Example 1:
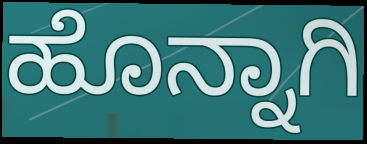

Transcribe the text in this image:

ಹೊನ್ನಾಗಿ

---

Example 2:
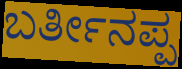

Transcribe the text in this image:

ಬರ್ತೀನಪ್ಪ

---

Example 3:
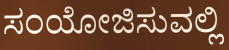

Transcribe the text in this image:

ಸಂಯೋಜಿಸುವಲ್ಲಿ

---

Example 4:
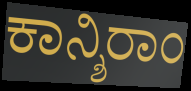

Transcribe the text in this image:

ಕಾನ್ಶಿರಾಂ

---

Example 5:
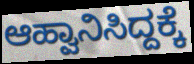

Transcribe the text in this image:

ಆಹ್ವಾನಿಸಿದ್ದಕ್ಕೆ